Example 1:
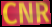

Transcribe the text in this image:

CNR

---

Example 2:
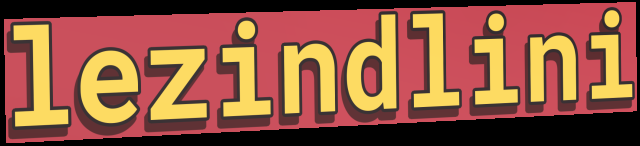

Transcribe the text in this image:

lezindlini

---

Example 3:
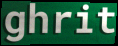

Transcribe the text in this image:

ghrit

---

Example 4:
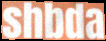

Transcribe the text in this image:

shbda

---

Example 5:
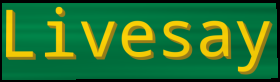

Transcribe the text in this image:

Livesay